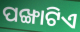
ପଙ୍ଖାଟିଏ